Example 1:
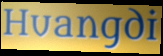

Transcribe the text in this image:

Huangdi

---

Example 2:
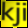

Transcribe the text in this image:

kji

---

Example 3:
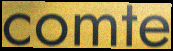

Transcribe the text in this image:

comte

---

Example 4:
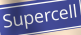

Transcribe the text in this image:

Supercell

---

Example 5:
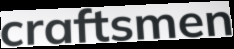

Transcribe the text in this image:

craftsmen